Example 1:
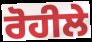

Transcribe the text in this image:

ਰੋਹੀਲੇ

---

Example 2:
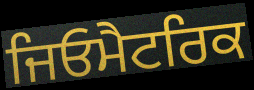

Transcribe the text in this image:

ਜਿਓਮੈਟਰਿਕ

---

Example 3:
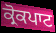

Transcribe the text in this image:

ਕ੍ਰੋਕਪਾਟ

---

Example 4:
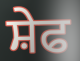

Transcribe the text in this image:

ਸ਼ੇਫ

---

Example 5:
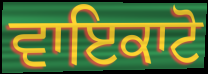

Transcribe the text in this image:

ਵਾਇਕਾਟੋ